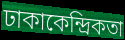
ঢাকাকেন্দ্রিকতা